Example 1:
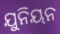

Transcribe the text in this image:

ଯୁନିୟନ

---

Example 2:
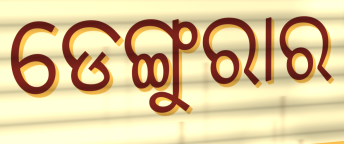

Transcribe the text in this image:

ଡେଙ୍ଗୁରାର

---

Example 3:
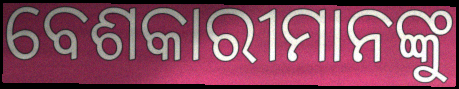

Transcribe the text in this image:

ବେଶକାରୀମାନଙ୍କୁ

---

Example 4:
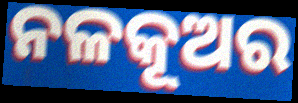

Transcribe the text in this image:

ନଳକୂଅର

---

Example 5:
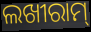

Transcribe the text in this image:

ଲଖୀରାମ୍